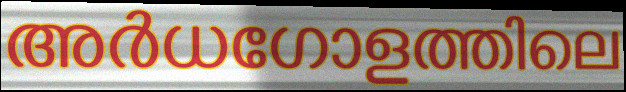
അർധഗോളത്തിലെ